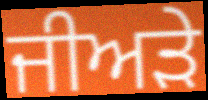
ਜੀਅੜੇ